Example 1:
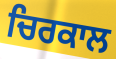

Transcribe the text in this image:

ਚਿਰਕਾਲ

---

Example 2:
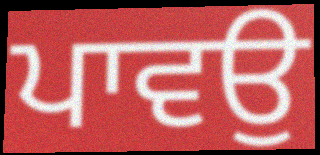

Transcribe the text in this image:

ਪਾਵਉ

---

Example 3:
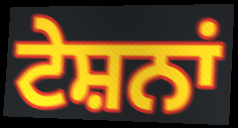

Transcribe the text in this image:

ਟੇਸ਼ਨਾਂ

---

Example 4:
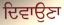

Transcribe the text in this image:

ਦਿਵਾਉਣਾ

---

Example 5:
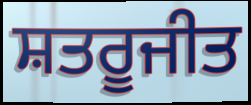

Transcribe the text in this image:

ਸ਼ਤਰੂਜੀਤ